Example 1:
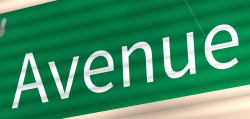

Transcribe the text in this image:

Avenue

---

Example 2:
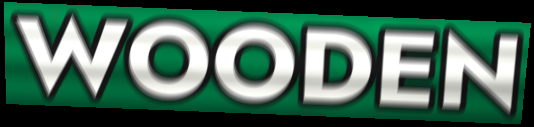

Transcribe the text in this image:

WOODEN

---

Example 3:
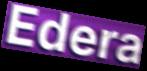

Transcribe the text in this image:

Edera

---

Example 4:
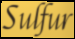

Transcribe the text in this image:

Sulfur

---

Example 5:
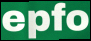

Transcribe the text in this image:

epfo